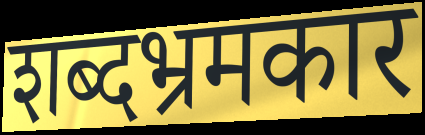
शब्दभ्रमकार